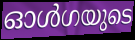
ഓൾഗയുടെ